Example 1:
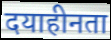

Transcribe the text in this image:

दयाहीनता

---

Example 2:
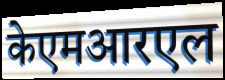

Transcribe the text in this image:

केएमआरएल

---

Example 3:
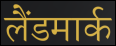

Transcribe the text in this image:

लैंडमार्क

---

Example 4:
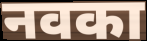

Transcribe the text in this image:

नवका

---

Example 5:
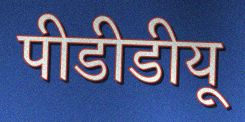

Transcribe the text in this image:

पीडीडीयू